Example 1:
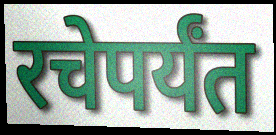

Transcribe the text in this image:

रचेपर्यंत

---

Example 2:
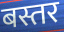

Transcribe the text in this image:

बस्तर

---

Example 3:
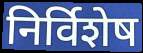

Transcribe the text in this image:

निर्विशेष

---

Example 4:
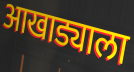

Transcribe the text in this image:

आखाड्याला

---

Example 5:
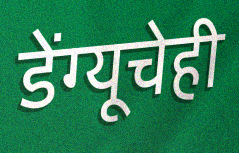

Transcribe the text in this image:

डेंग्यूचेही